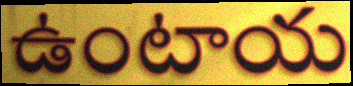
ఉంటాయ